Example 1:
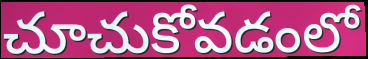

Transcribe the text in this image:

చూచుకోవడంలో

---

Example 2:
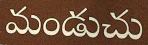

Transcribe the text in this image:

మండుచు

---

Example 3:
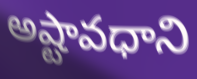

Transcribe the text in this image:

అష్టావధాని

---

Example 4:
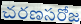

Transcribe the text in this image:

చరణసరోజ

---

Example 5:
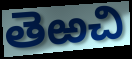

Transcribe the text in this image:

తెఱచి